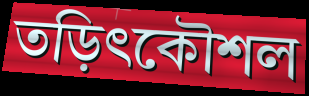
তড়িৎকৌশল